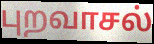
புறவாசல்